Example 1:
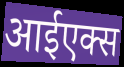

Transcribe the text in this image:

आईएक्स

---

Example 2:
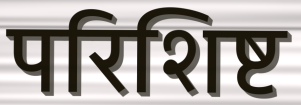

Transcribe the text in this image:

परिशिष्ट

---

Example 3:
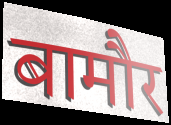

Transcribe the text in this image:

बामौर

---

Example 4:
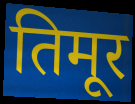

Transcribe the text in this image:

तिमूर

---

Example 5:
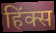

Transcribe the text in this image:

हिंक्स